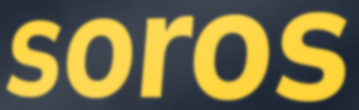
soros